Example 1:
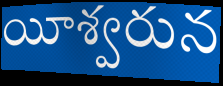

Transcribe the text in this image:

యీశ్వరున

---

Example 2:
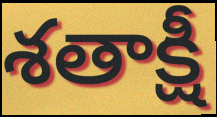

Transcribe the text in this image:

శతాక్షీ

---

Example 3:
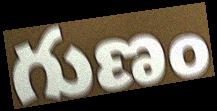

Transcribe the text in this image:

గుణం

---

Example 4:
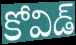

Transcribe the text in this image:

కోవిడ్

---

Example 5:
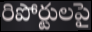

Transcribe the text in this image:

రిపోర్టులపై